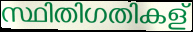
സ്ഥിതിഗതികള്